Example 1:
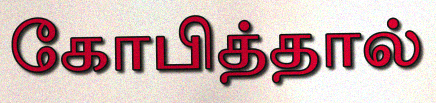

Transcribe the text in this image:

கோபித்தால்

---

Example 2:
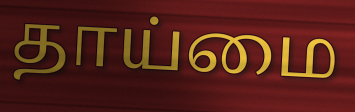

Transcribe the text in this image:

தாய்மை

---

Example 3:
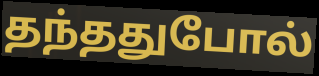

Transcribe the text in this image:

தந்ததுபோல்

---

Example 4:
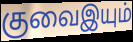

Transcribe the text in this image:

குவைஇயும்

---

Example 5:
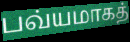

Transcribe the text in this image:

பவ்யமாகத்